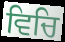
ਵਿਚਿ